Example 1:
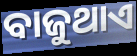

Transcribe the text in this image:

ବାଜୁଥାଏ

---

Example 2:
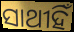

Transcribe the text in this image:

ସାଥୀହିଁ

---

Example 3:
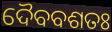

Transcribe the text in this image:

ଦୈବବଶତଃ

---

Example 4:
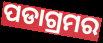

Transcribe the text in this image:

ପଡାଗ୍ରମର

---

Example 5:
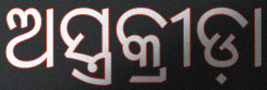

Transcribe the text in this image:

ଅସ୍ତ୍ରକ୍ରୀଡ଼ା